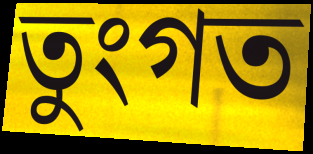
তুংগত